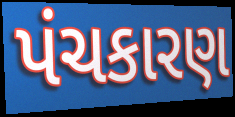
પંચકારણ